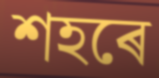
শহৰে